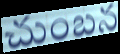
చుంబన